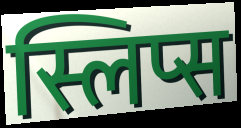
स्लिप्स